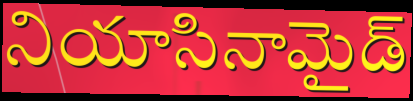
నియాసినామైడ్